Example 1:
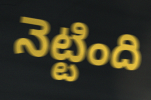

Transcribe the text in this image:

నెట్టింది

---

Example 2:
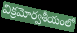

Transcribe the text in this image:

విక్రమోర్వశీయంలో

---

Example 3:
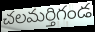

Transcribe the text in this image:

చలమర్తిగండ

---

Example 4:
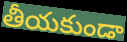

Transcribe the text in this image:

తీయకుండా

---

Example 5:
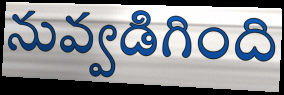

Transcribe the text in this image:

నువ్వడిగింది